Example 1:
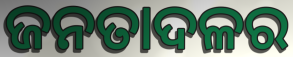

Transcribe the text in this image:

ଜନତାଦଳର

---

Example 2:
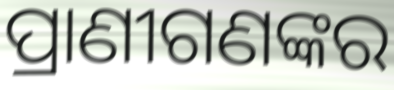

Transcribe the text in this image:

ପ୍ରାଣୀଗଣଙ୍କର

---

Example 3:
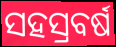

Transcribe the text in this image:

ସହସ୍ରବର୍ଷ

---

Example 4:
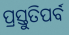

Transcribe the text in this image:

ପ୍ରସ୍ତୁତିପର୍ବ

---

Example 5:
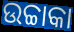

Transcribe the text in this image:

ଉଚ୍ଚାକା